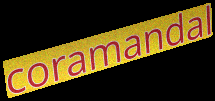
coramandal